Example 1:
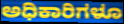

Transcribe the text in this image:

ಅಧಿಕಾರಿಗಳೂ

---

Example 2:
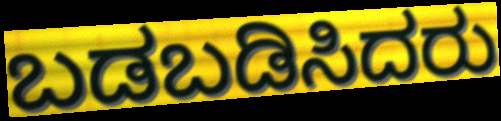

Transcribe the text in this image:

ಬಡಬಡಿಸಿದರು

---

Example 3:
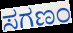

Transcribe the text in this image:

ಸಗಣಂ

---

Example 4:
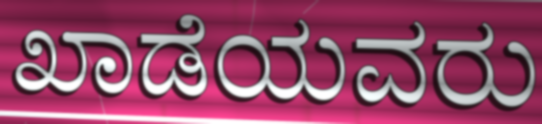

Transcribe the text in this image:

ಖಾಡೆಯವರು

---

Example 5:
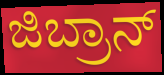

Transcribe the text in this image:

ಜಿಬ್ರಾನ್